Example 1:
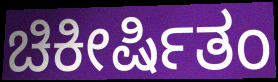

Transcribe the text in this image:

ಚಿಕೀರ್ಷಿತಂ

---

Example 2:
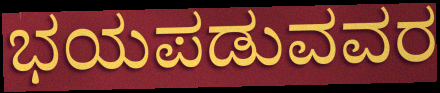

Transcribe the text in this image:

ಭಯಪಡುವವರ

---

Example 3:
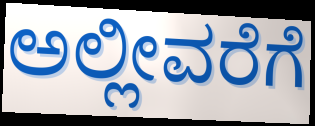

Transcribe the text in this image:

ಅಲ್ಲೀವರೆಗೆ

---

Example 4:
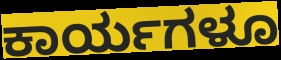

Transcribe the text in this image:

ಕಾರ್ಯಗಳೂ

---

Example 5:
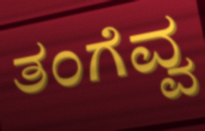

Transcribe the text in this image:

ತಂಗೆವ್ವ